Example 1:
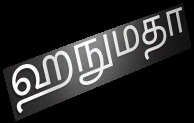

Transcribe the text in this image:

ஹநுமதா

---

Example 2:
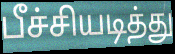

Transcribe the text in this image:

பீச்சியடித்து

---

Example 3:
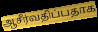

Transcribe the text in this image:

ஆசீர்வதிப்பதாக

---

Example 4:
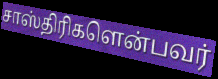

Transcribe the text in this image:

சாஸ்திரிகளென்பவர்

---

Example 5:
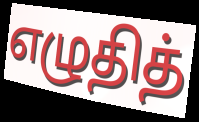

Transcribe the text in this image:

எழுதித்